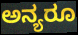
ಅನ್ಯರೂ